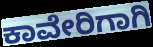
ಕಾವೇರಿಗಾಗಿ